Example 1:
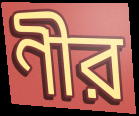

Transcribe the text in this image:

ণীর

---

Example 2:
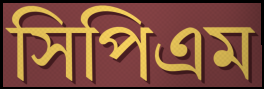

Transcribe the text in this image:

সিপিএম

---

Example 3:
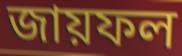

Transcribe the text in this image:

জায়ফল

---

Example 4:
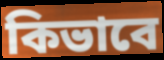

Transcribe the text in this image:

কিভাবে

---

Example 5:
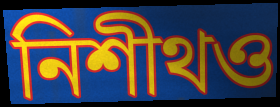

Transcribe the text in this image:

নিশীথও